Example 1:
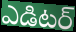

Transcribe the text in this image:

ఎడిటర్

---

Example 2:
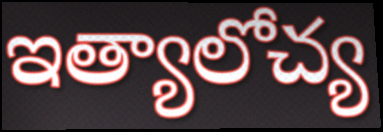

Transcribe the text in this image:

ఇత్యాలోచ్య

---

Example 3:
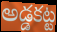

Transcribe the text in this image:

అడ్డకట్ట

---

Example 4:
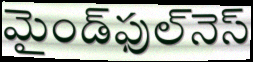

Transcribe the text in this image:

మైండ్‌ఫుల్‌నెస్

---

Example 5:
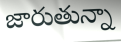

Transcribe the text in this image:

జారుతున్నా